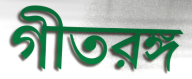
গীতরঙ্গ